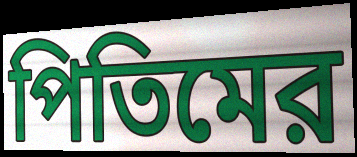
পিতিমের